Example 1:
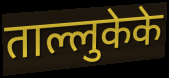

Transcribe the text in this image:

ताल्लुकेके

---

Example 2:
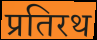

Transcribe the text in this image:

प्रतिरथ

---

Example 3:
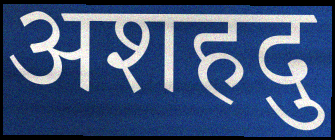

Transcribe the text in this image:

अशहदु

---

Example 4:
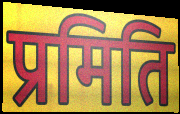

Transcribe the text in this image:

प्रमिति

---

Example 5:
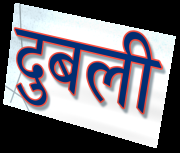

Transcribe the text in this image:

दुबली